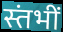
स्तंभीं